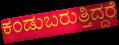
ಕಂಡುಬರುತ್ತಿದ್ದರೆ